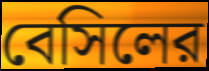
বেসিলের